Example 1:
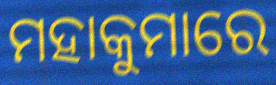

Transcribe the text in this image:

ମହାକୁମାରେ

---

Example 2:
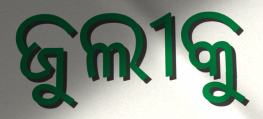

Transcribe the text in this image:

ଜୁଲୀକୁ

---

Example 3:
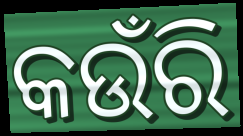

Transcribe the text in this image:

କଉଁରି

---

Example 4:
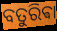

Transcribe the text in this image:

ବତୁରିଵା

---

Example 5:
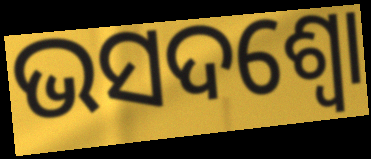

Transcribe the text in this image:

ଭସଦଶ୍ଵୋ